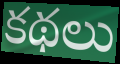
కథలు